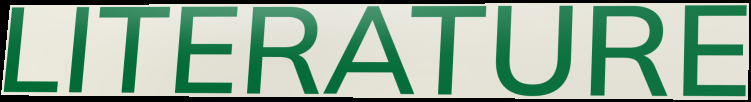
LITERATURE